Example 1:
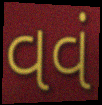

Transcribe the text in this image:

વવં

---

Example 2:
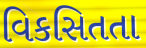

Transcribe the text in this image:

વિકસિતતા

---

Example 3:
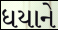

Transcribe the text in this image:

ધયાને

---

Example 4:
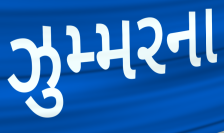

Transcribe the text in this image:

ઝુમ્મરના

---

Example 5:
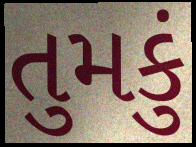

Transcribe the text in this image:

તુમકું